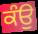
ਕੰਉ